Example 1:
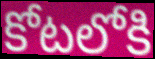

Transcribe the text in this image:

కోటలోకి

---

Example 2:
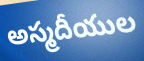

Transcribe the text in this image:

అస్మదీయుల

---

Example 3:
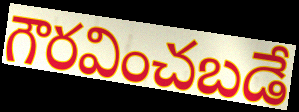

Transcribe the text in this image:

గౌరవించబడే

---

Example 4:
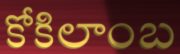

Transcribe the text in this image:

కోకిలాంబ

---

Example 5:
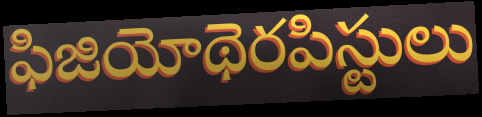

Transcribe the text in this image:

ఫిజియోథెరపిస్టులు